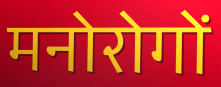
मनोरोगों